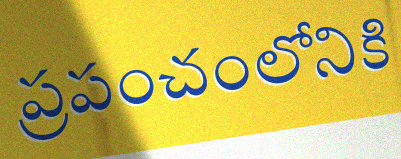
ప్రపంచంలోనికి